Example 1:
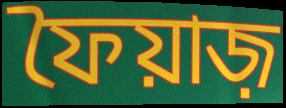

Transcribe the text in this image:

ফৈয়াজ়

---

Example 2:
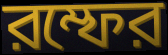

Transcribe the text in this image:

রম্ফের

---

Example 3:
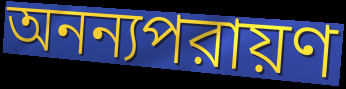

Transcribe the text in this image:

অনন্যপরায়ণ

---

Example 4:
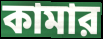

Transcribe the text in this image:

কামার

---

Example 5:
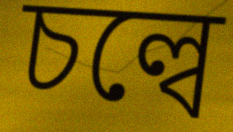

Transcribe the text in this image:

চল্বে